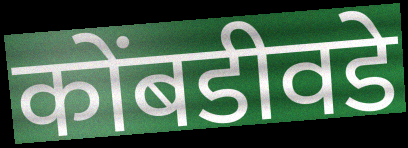
कोंबडीवडे